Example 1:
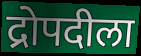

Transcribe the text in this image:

द्रोपदीला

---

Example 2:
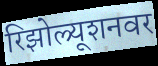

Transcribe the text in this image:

रिझोल्यूशनवर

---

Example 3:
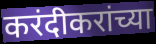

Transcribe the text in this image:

करंदीकरांच्या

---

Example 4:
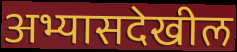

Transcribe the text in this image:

अभ्यासदेखील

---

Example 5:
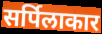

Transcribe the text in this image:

सर्पिलाकार